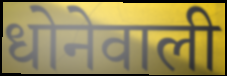
धोनेवाली